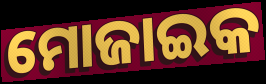
ମୋଜାଇକ